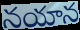
నయాన